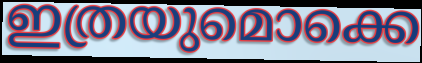
ഇത്രയുമൊക്കെ